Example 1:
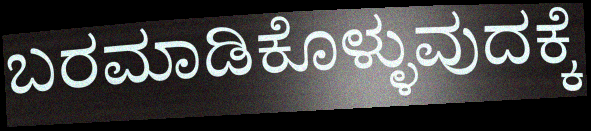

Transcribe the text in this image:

ಬರಮಾಡಿಕೊಳ್ಳುವುದಕ್ಕೆ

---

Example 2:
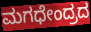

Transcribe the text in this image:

ಮಗಧೇಂದ್ರದ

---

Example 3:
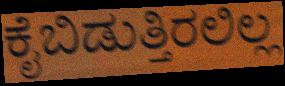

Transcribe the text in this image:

ಕೈಬಿಡುತ್ತಿರಲಿಲ್ಲ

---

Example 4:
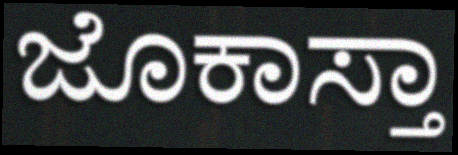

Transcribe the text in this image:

ಜೊಕಾಸ್ತಾ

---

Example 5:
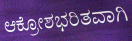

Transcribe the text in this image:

ಆಕ್ರೋಶಭರಿತವಾಗಿ